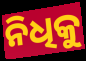
ନିଧିକୁ